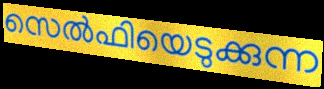
സെൽഫിയെടുക്കുന്ന